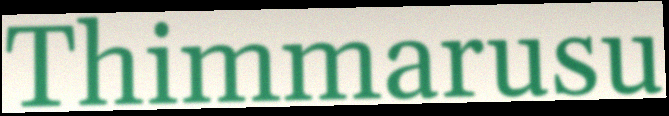
Thimmarusu